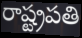
రాష్ట్రపతి